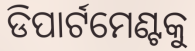
ଡିପାର୍ଟମେଣ୍ଟକୁ